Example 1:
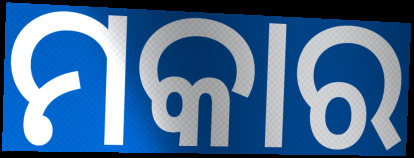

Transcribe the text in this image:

ମକାର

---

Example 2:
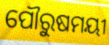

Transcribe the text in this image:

ପୌରୁଷମୟୀ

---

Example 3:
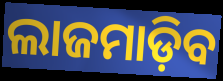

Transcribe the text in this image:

ଲାଜମାଡ଼ିବ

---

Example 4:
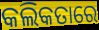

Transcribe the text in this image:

କଲିକତାରେ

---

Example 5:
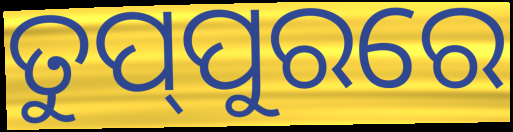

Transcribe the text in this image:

ତୁପ୍‌ପୁରରେ